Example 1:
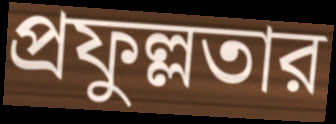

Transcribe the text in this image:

প্রফুল্লতার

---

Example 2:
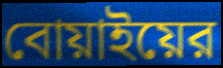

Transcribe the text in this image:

বোয়াইয়ের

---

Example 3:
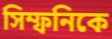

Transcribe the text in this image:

সিম্ফনিকে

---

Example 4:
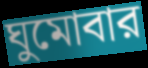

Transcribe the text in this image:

ঘুমোবার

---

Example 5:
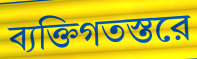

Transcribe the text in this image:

ব্যক্তিগতস্তরে